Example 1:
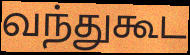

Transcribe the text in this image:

வந்துகூட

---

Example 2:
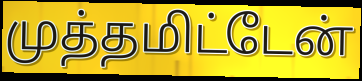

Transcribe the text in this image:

முத்தமிட்டேன்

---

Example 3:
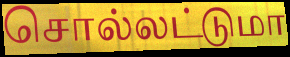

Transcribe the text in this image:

சொல்லட்டுமா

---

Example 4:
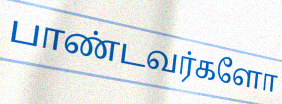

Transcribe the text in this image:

பாண்டவர்களோ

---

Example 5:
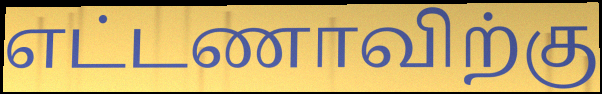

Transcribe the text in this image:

எட்டணாவிற்கு